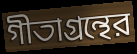
গীতাগ্রন্থের